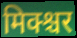
मिक्श्चर